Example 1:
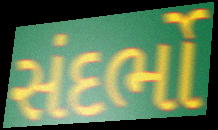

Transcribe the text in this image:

સંદર્ભો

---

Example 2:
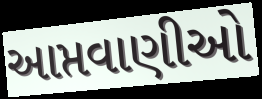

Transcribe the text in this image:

આપ્તવાણીઓ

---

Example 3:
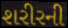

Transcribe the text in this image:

શરીરની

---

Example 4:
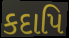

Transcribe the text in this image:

કદાપિ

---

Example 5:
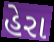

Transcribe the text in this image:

હેરા